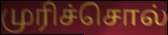
முரிச்சொல்